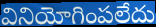
వినియోగింపలేదు